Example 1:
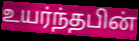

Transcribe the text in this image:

உயர்ந்தபின்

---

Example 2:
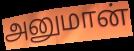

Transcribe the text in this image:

அனுமான்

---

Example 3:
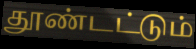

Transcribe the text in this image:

தூண்டட்டும்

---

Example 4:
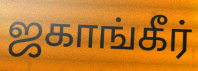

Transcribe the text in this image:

ஜகாங்கீர்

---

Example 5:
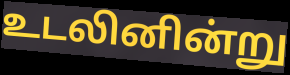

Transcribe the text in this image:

உடலினின்று